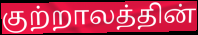
குற்றாலத்தின்